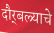
दौर्बल्याचे